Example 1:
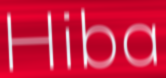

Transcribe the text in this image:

Hiba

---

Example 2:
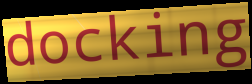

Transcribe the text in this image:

docking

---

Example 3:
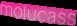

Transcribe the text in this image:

molucass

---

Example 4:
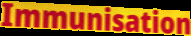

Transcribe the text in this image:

Immunisation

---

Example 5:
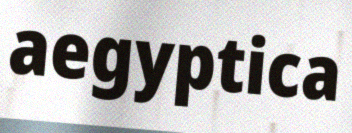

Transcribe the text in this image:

aegyptica